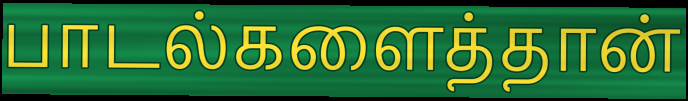
பாடல்களைத்தான்